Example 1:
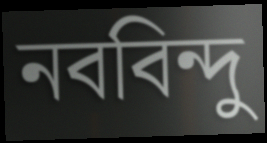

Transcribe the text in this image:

নববিন্দু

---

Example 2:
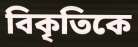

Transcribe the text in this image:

বিকৃতিকে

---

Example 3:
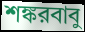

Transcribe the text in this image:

শঙ্করবাবু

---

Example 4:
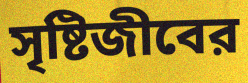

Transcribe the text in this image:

সৃষ্টিজীবের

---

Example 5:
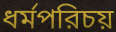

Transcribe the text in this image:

ধর্মপরিচয়